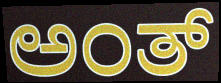
ಅಂತ್